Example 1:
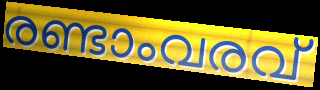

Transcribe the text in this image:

രണ്ടാംവരവ്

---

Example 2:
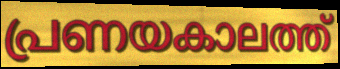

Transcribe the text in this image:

പ്രണയകാലത്ത്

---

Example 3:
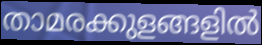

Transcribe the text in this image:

താമരക്കുളങ്ങളിൽ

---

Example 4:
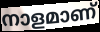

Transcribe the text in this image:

നാളമാണ്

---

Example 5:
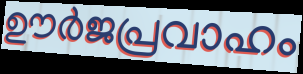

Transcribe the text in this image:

ഊർജപ്രവാഹം